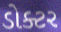
ડોક્ટર